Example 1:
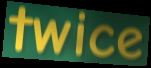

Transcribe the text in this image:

twice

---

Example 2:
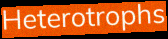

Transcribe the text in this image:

Heterotrophs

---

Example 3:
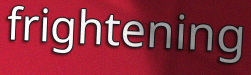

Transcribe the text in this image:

frightening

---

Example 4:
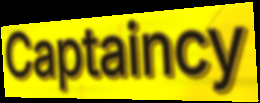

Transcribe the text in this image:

Captaincy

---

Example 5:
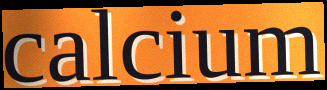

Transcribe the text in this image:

calcium